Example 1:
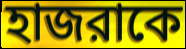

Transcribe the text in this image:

হাজরাকে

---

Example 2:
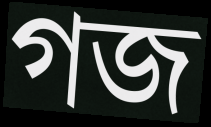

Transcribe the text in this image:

গজ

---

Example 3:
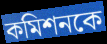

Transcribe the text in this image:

কমিশনকে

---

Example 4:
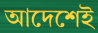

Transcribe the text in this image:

আদেশেই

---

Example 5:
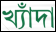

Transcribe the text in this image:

খ্যাঁদা